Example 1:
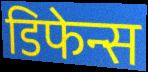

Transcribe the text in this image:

डिफेन्स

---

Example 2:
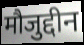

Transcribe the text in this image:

मौजुद्दीन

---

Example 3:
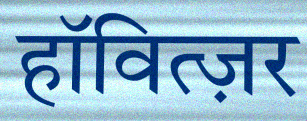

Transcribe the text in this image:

हॉवित्ज़र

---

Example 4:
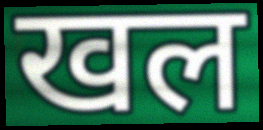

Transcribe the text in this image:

खल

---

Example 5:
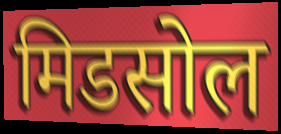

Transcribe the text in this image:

मिडसोल